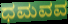
ಧಮವವ